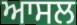
ਆਸਲ